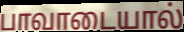
பாவாடையால்